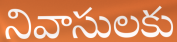
నివాసులకు